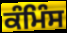
ਕੰਮਿੰਸ